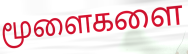
மூளைகளை